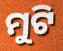
ମୁଟି